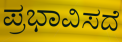
ಪ್ರಭಾವಿಸದೆ